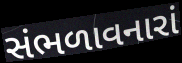
સંભળાવનારાં